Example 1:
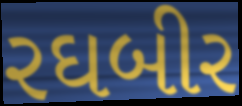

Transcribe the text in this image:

રઘબીર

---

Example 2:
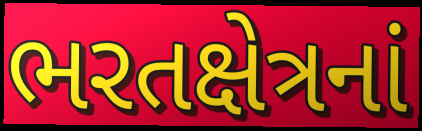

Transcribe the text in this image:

ભરતક્ષેત્રનાં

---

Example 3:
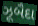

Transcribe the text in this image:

ઝૂબૈદા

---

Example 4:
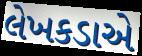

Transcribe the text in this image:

લેખકડાએ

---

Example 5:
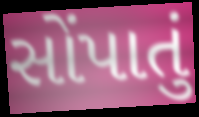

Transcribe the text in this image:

સોંપાતું